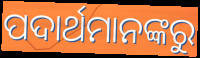
ପଦାର୍ଥମାନଙ୍କରୁ